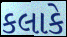
કલાકે